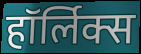
हॉर्लिक्स